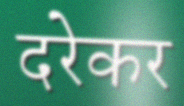
दरेकर